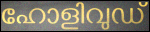
ഹോളിവുഡ്